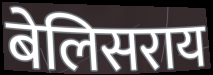
बेलिसराय